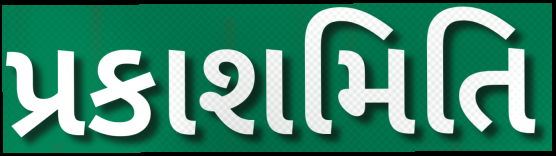
પ્રકાશમિતિ